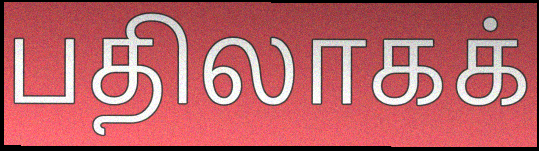
பதிலாகக்